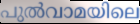
പുൽവാമയിലെ